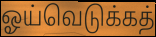
ஓய்வெடுக்கத்